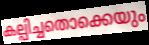
കല്പിച്ചതൊക്കെയും